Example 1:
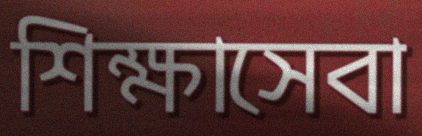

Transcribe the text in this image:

শিক্ষাসেবা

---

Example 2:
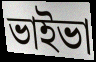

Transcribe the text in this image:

ভাইভা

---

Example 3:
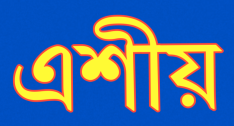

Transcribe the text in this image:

এশীয়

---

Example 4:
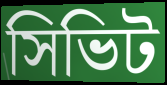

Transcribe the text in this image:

সিভিট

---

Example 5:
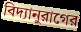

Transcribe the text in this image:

বিদ্যানুরাগের